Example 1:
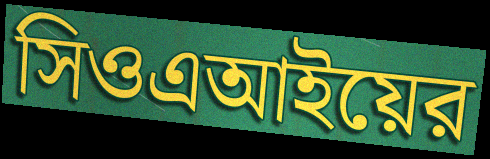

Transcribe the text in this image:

সিওএআইয়ের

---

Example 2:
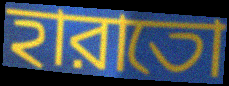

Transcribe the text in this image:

হারাতো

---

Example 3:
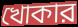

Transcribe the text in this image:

খোকার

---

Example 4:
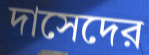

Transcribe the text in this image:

দাসেদের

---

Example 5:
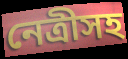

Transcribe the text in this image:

নেত্রীসহ